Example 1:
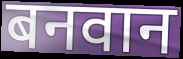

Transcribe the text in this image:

बनवान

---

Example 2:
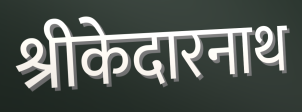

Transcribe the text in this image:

श्रीकेदारनाथ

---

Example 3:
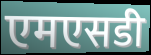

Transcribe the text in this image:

एमएसडी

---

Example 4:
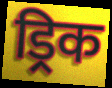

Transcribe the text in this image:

ड्रिक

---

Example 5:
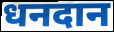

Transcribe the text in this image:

धनदान